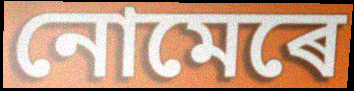
নোমেৰে